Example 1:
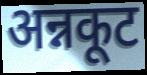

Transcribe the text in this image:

अन्नकूट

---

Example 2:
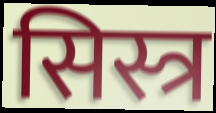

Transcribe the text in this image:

सिस्त्र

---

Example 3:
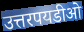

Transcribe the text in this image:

उत्तरपयडीओ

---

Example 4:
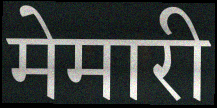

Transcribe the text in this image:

मेमारी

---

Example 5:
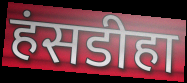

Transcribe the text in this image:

हंसडीहा